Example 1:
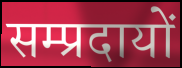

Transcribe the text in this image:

सम्प्रदायों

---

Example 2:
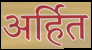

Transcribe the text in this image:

अर्हित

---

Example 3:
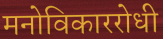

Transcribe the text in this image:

मनोविकाररोधी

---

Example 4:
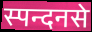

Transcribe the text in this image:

स्पन्दनसे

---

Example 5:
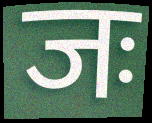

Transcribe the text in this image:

जः